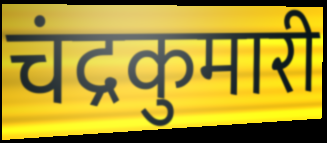
चंद्रकुमारी